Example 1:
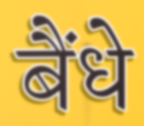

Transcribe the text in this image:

बैंधे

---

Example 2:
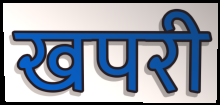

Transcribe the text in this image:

खपरी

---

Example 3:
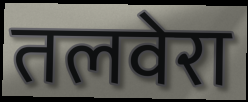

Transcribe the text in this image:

तलवेरा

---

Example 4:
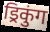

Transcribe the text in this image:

ड्रिकुंग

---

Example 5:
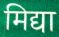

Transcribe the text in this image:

मिद्या